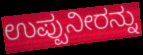
ಉಪ್ಪುನೀರನ್ನು